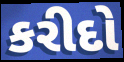
કરીદો